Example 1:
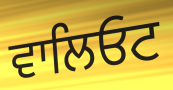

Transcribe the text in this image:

ਵਾਲਿਓਟ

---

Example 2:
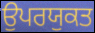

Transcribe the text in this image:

ਉਪਰਯੁਕਤ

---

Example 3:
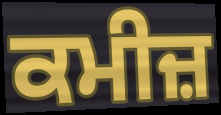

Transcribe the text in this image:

ਕਮੀਜ਼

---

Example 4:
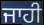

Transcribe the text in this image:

ਜਾਹੀ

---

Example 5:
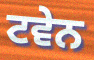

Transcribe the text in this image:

ਟਵੇਨ